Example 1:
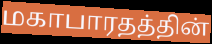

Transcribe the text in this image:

மகாபாரதத்தின்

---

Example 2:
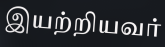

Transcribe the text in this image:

இயற்றியவர்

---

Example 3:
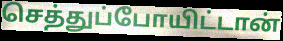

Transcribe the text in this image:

செத்துப்போயிட்டான்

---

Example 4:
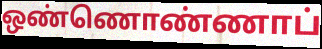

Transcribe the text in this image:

ஒண்ணொண்ணாப்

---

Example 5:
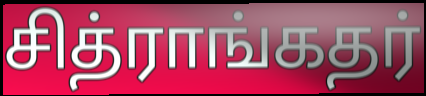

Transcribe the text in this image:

சித்ராங்கதர்